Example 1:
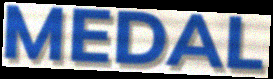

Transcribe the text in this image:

MEDAL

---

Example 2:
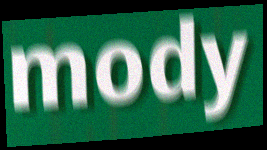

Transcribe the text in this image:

mody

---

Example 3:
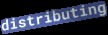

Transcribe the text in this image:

distributing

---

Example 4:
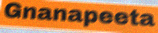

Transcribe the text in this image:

Gnanapeeta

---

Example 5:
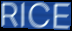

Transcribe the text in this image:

RICE